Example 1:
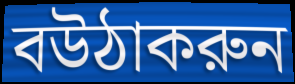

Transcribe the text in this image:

বউঠাকরুন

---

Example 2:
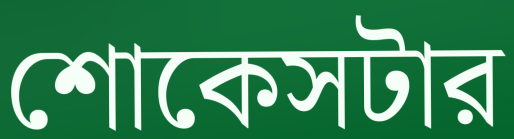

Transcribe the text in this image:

শোকেসটার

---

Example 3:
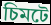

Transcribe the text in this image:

চিমটে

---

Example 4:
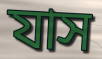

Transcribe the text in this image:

যাস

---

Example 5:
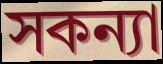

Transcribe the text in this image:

সকন্যা